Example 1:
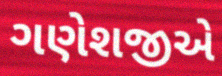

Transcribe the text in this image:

ગણેશજીએ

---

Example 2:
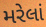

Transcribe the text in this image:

મરેલાં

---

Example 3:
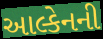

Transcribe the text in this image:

આલ્કેનની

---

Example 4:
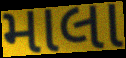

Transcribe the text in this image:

માલા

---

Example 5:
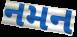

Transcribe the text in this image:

નમન